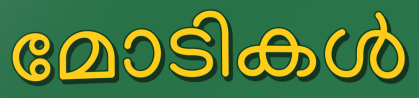
മോടികൾ